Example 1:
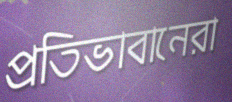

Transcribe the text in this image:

প্রতিভাবানেরা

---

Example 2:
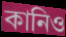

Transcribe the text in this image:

কানিও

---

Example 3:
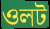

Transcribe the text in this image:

ওলট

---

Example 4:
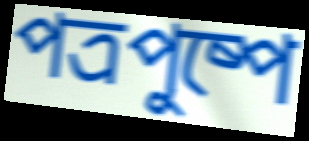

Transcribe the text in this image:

পত্রপুষ্পে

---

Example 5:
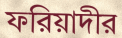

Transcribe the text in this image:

ফরিয়াদীর